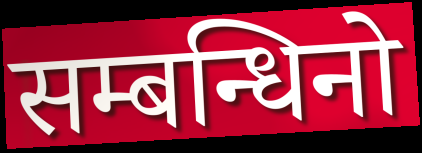
सम्बन्धिनो